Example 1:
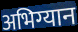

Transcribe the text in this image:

अभिग्यान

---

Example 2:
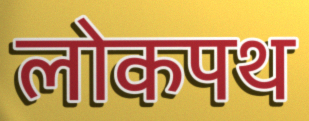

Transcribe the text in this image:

लोकपथ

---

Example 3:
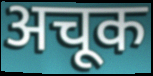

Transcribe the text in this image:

अचूक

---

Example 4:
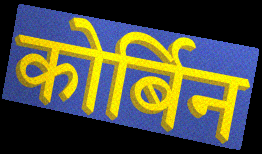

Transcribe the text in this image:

कोर्बिन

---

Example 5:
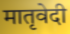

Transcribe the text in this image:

मातृवेदी